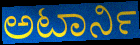
ಅಟಾರ್ನಿ